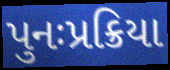
પુનઃપ્રક્રિયા